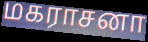
மகராசனா